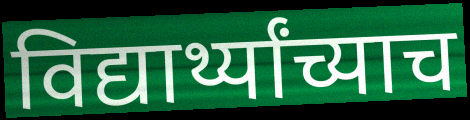
विद्यार्थ्यांच्याच